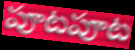
పూటపూట